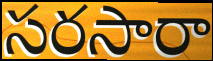
సరసారా